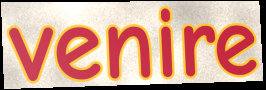
venire